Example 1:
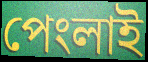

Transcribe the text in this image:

পেংলাই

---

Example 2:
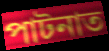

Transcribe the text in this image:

পাটনাত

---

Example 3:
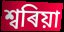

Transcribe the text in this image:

শ্বৰিয়া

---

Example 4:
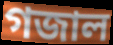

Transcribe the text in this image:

গজাল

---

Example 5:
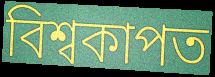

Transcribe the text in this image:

বিশ্বকাপত